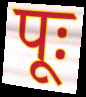
पूः